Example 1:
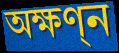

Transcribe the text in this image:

অক্ষণ্ন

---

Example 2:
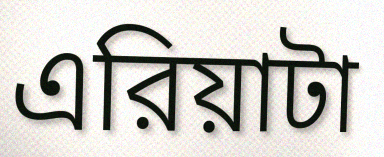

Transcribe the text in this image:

এরিয়াটা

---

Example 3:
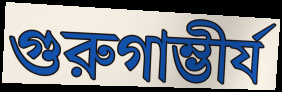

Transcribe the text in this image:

গুরুগাম্ভীর্য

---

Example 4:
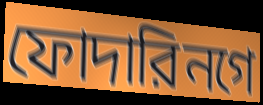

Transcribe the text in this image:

ফোদারিনগে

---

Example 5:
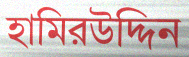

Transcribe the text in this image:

হামিরউদ্দিন